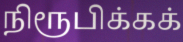
நிரூபிக்கக்